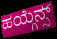
ಹಯ್ಗೆನ್ಸ್